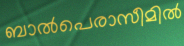
ബാൽപെരാസീമിൽ